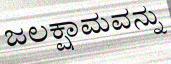
ಜಲಕ್ಷಾಮವನ್ನು